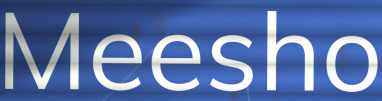
Meesho